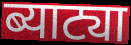
ब्याट्या